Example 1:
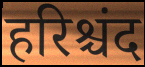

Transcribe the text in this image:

हरिश्चंद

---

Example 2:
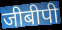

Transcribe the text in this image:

जीबीपी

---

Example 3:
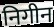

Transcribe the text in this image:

निगीन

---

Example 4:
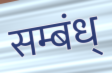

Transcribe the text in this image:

सम्बंध्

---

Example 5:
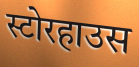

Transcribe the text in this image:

स्टोरहाउस